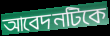
আবেদনটিকে